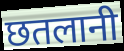
छतलानी